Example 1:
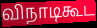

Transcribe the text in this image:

விநாடிகூட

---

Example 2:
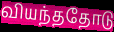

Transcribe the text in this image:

வியந்ததோடு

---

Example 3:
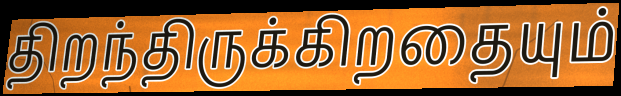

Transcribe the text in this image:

திறந்திருக்கிறதையும்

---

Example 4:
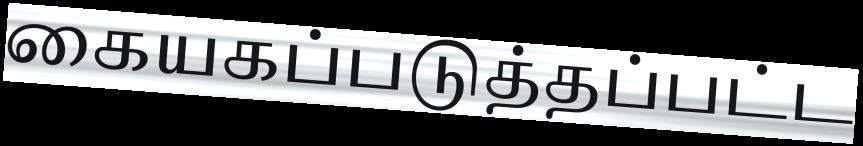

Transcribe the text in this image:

கையகப்படுத்தப்பட்ட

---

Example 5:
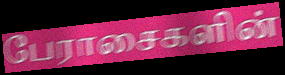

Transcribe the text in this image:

பேராசைகளின்